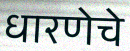
धारणेचे